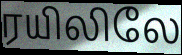
ரயிலிலே